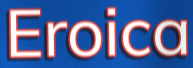
Eroica